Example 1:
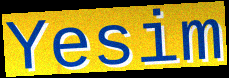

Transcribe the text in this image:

Yesim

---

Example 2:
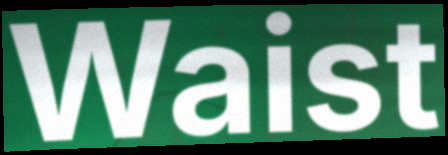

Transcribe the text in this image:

Waist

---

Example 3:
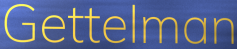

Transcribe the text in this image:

Gettelman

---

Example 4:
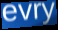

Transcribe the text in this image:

evry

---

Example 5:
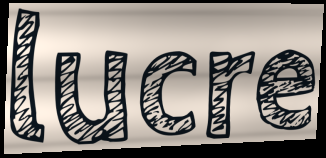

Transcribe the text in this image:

lucre